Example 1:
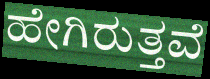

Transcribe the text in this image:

ಹೇಗಿರುತ್ತವೆ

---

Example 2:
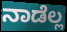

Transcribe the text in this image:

ನಾಡೆಲ್ಲ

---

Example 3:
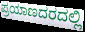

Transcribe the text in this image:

ಪ್ರಯಾಣದರದಲ್ಲಿ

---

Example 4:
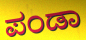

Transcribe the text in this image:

ಪಂಡಾ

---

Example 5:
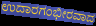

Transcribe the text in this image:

ಉದಾರಗಂಭೀರವಾದ